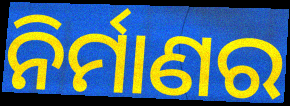
ନିର୍ମାଣର